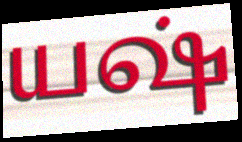
யஷ்